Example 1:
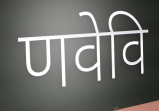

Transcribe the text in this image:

णवेवि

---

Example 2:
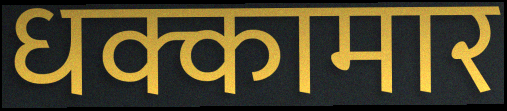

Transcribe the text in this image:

धक्कामार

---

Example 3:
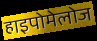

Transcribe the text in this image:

हाइपोमेलोज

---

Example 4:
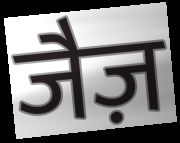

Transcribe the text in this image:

जैज़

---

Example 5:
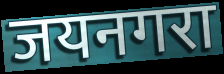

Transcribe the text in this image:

जयनगरा